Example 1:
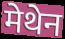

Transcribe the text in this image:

मेथेन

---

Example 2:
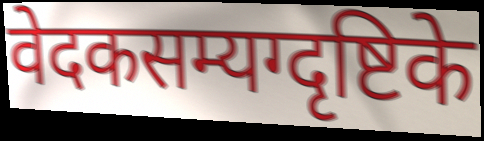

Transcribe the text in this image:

वेदकसम्यग्दृष्टिके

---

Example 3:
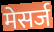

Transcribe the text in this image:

मेसर्ज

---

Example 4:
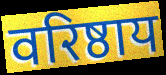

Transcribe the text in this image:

वरिष्ठाय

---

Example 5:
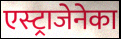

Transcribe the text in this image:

एस्‍ट्राजेनेका